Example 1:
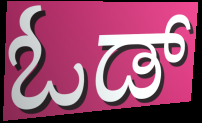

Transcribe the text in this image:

ಓಡ್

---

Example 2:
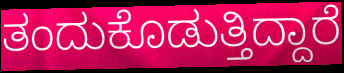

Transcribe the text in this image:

ತಂದುಕೊಡುತ್ತಿದ್ದಾರೆ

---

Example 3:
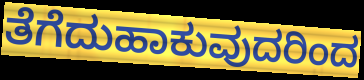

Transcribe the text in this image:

ತೆಗೆದುಹಾಕುವುದರಿಂದ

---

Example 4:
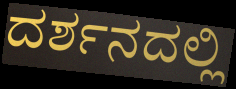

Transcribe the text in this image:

ದರ್ಶನದಲ್ಲಿ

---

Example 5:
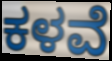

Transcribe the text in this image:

ಕಳವೆ